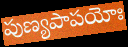
పుణ్యపాపయోః